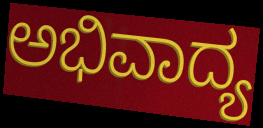
ಅಭಿವಾದ್ಯ